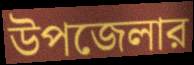
উপজেলার